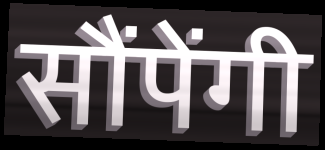
सौंपेंगी